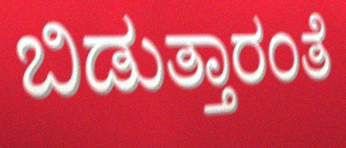
ಬಿಡುತ್ತಾರಂತೆ